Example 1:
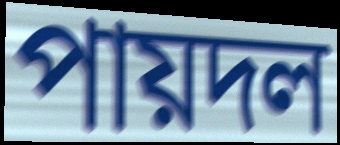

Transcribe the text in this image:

পায়দল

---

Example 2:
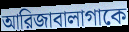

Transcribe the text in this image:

আরিজাবালাগাকে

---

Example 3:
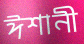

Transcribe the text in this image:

ঈশানী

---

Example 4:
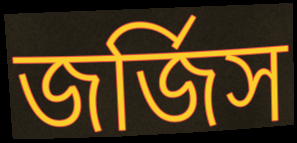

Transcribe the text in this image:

জর্জিস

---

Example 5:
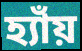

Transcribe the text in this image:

হ্যাঁয়